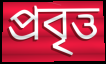
প্ৰবৃত্ত